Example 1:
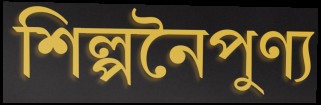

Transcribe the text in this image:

শিল্পনৈপুণ্য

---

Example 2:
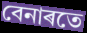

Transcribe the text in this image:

বেনাৰতে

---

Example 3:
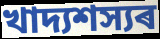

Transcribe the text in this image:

খাদ্যশস্যৰ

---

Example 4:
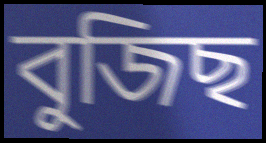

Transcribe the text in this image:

বুজিছ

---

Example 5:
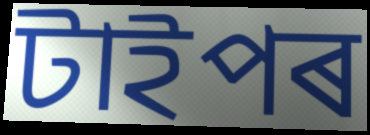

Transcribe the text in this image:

টাইপৰ